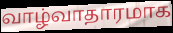
வாழ்வாதாரமாக